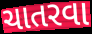
ચાતરવા